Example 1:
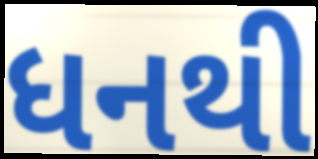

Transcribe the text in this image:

ધનથી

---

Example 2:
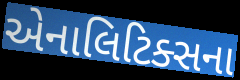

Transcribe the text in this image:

એનાલિટિક્સના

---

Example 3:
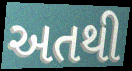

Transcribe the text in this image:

અતથી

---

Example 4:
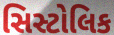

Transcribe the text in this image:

સિસ્ટોલિક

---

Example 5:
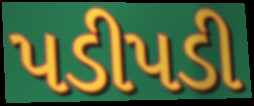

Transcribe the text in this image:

પડીપડી